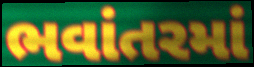
ભવાંતરમાં